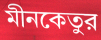
মীনকেতুর